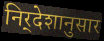
निर्देशानुसार